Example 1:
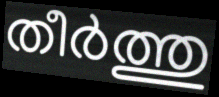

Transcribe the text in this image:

തീർത്തു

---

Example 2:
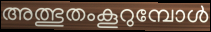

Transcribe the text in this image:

അത്ഭുതംകൂറുമ്പോൾ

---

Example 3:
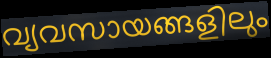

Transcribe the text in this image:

വ്യവസായങ്ങളിലും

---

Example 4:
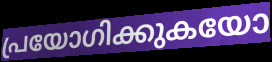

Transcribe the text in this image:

പ്രയോഗിക്കുകയോ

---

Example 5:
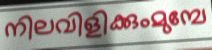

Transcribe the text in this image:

നിലവിളിക്കുംമുമ്പേ